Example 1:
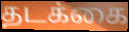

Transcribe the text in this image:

தடக்கை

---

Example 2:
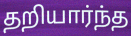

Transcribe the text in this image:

தறியார்ந்த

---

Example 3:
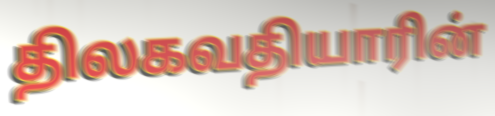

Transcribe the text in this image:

திலகவதியாரின்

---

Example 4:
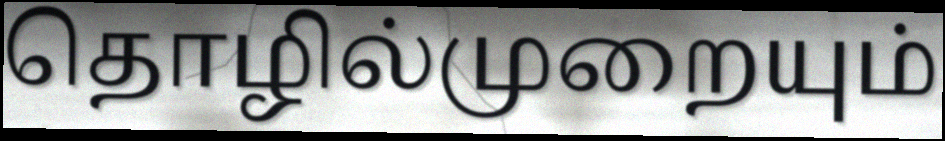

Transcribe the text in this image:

தொழில்முறையும்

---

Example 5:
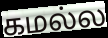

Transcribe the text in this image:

கமல்ல